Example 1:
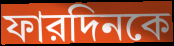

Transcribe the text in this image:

ফারদিনকে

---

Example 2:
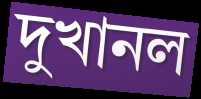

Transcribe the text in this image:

দুখানল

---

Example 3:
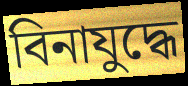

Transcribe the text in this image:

বিনাযুদ্ধে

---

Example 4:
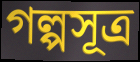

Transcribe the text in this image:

গল্পসূত্র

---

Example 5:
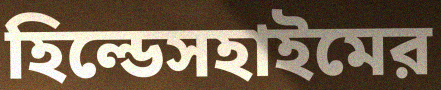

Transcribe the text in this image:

হিল্ডেসহাইমের